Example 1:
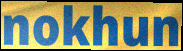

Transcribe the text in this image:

nokhun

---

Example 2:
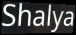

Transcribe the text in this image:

Shalya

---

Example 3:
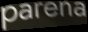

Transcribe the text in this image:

parena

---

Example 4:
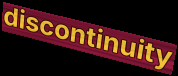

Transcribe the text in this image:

discontinuity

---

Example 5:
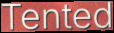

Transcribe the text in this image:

Tented